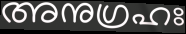
അനുഗ്രഹഃ